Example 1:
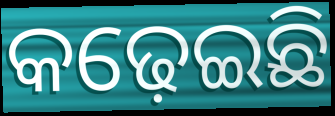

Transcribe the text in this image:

କଢ଼େଇଛି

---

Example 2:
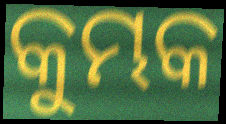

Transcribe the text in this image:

କୁମ୍ଭକ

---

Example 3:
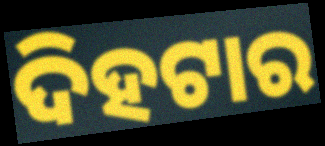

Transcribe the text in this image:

ଦିହଟାର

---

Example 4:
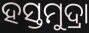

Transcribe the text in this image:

ହସ୍ତମୁଦ୍ରା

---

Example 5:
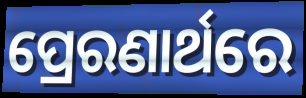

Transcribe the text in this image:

ପ୍ରେରଣାର୍ଥରେ